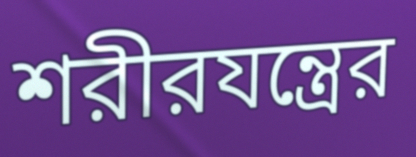
শরীরযন্ত্রের